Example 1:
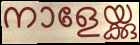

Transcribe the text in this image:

നാളേയ്ക്കു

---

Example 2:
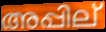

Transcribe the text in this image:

അപ്പില്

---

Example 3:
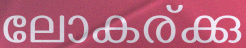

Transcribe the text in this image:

ലോകര്ക്കു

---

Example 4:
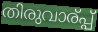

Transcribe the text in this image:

തിരുവാര്പ്പ്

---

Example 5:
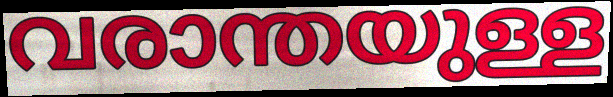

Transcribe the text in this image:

വരാന്തയുള്ള